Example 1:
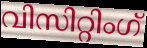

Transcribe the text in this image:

വിസിറ്റിംഗ്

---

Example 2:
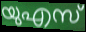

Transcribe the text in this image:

യുഎസ്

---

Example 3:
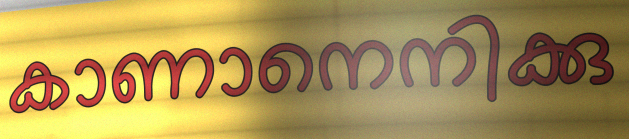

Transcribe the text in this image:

കാണാനെനിക്കു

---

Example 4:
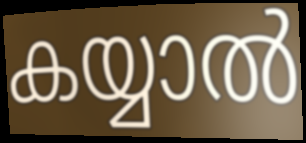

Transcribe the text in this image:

കയ്യാൽ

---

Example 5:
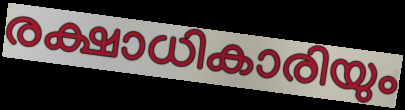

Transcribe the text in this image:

രക്ഷാധികാരിയും